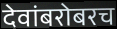
देवांबरोबरच